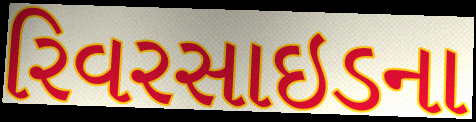
રિવરસાઇડના